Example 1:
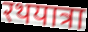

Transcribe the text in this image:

रथयात्रा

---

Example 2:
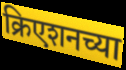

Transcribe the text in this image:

क्रिएशनच्या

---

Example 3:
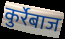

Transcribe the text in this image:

कुर्रेबाज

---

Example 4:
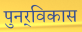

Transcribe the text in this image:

पुनर्विकास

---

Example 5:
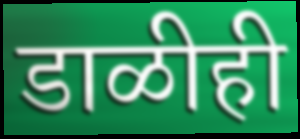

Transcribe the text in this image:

डाळीही